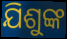
ଯିଶୁଙ୍କ